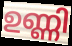
ഉണ്ണി